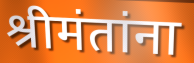
श्रीमंतांना